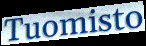
Tuomisto